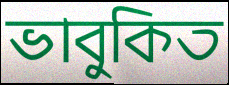
ভাবুকিত